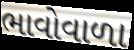
ભાવોવાળા